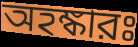
অহঙ্কারঃ